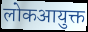
लोकआयुक्त